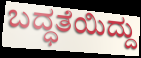
ಬದ್ಧತೆಯಿದ್ದು